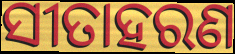
ସୀତାହରଣ